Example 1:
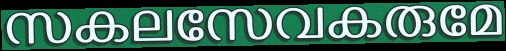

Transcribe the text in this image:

സകലസേവകരുമേ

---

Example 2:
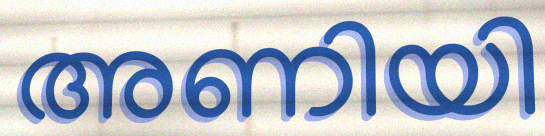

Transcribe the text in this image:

അണിയി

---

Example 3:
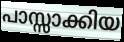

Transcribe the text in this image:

പാസ്സാക്കിയ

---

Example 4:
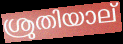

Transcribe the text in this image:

ശ്രുതിയാല്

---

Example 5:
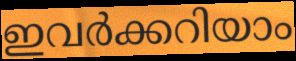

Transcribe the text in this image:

ഇവർക്കറിയാം